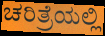
ಚರಿತ್ರೆಯಲ್ಲಿ